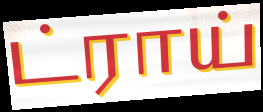
ட்ராய்